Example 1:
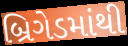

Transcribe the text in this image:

બ્રિગેડમાંથી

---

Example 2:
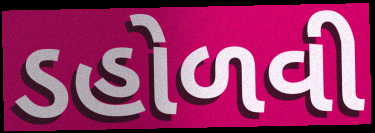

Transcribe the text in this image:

ડહોળવી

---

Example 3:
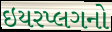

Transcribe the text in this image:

ઇયરપ્લગનો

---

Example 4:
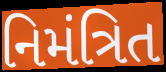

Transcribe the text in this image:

નિમંત્રિત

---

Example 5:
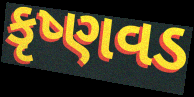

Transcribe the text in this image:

કૃષ્ણવડ